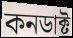
কনডাক্ট